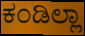
ಕಂಡಿಲ್ಲಾ